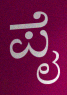
ಪೈ